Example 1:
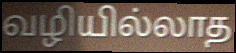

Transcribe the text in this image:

வழியில்லாத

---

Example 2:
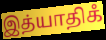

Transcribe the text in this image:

இத்யாதிகஂ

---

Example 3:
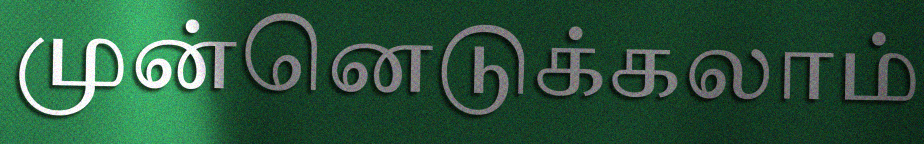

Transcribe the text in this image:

முன்னெடுக்கலாம்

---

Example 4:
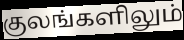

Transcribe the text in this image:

குலங்களிலும்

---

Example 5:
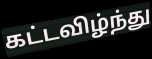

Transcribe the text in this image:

கட்டவிழ்ந்து